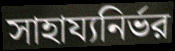
সাহায্যনির্ভর